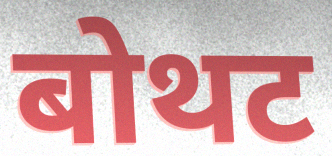
बोथट